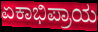
ಏಕಾಭಿಪ್ರಾಯ